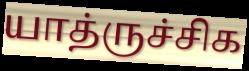
யாத்ருச்சிக